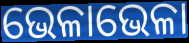
ଭେଳାଭେଳା